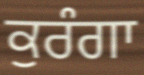
ਕੁਰੰਗਾ